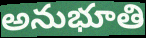
అనుభూతి